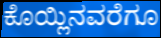
ಕೊಯ್ಲಿನವರೆಗೂ